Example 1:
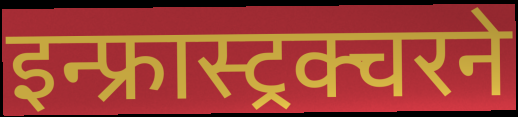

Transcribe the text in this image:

इन्फ्रास्ट्रक्चरने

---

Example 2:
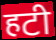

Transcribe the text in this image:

हटी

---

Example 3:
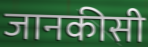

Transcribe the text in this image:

जानकीसी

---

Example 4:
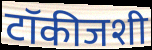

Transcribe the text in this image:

टॉकीजशी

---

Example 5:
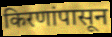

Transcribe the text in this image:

किरणांपासून